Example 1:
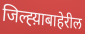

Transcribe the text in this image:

जिल्ह्य़ाबाहेरील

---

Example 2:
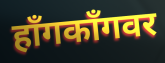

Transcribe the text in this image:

हॉंगकॉंगवर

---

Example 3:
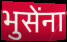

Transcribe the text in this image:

भुसेंना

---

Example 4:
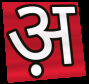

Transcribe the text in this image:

अ़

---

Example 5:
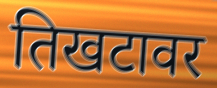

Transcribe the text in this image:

तिखटावर